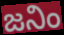
జనిం